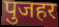
पुजहर